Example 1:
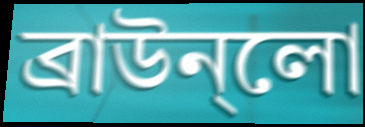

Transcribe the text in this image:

ব্রাউন্লো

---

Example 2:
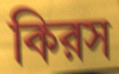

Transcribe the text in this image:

কিরস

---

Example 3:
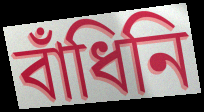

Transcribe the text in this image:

বাঁধিনি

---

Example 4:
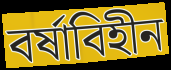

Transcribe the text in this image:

বর্ষাবিহীন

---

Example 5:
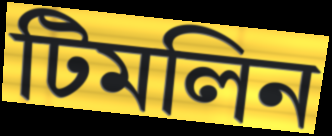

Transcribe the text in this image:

টিমলিন